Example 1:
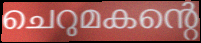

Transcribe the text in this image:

ചെറുമകന്റെ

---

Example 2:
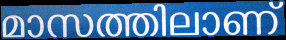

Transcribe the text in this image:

മാസത്തിലാണ്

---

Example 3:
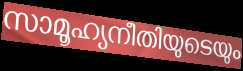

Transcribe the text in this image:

സാമൂഹ്യനീതിയുടെയും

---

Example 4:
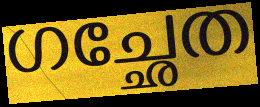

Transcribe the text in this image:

ഗച്ഛേത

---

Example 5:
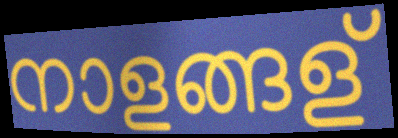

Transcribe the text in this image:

നാളങ്ങള്